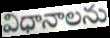
విధానాలను